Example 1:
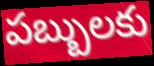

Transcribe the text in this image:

పబ్బులకు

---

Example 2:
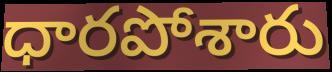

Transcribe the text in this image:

ధారపోశారు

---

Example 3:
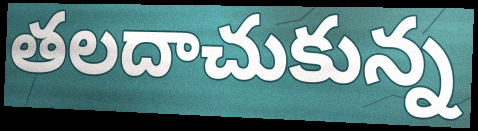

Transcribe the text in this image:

తలదాచుకున్న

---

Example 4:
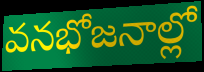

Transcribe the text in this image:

వనభోజనాల్లో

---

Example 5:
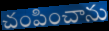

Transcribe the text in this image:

చంపించాను